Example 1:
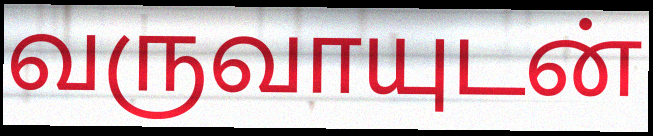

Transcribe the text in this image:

வருவாயுடன்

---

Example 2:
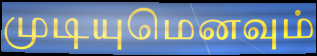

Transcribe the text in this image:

முடியுமெனவும்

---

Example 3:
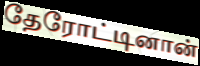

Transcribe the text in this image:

தேரோட்டினான்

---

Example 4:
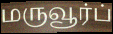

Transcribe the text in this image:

மருவூர்ப்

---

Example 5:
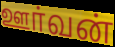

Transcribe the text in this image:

ஊர்வன்